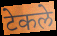
टेकले